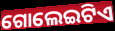
ଗୋଲେଇଟିଏ